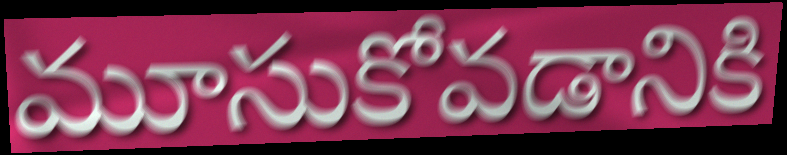
మూసుకోవడానికి